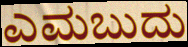
ಎಮಬುದು